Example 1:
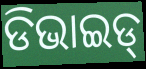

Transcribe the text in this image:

ଡିଭାଇଡ୍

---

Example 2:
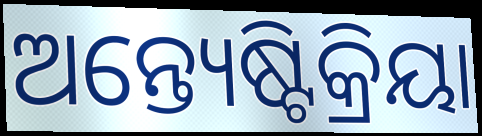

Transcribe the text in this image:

ଅନ୍ତ୍ୟେଷ୍ଟିକ୍ରିୟା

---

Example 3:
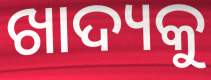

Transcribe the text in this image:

ଖାଦ୍ୟକୁ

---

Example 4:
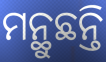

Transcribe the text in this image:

ମନ୍ଥୁଛନ୍ତି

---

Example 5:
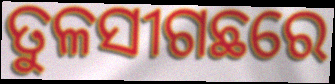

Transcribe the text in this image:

ତୁଳସୀଗଛରେ